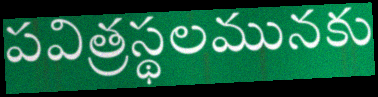
పవిత్రస్థలమునకు